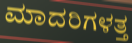
ಮಾದರಿಗಳತ್ತ